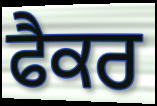
ਫੈਕਰ